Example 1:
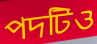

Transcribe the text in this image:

পদটিও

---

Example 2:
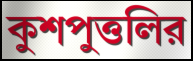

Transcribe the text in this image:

কুশপুত্তলির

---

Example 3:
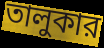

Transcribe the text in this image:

তালুকার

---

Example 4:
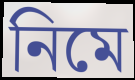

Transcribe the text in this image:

নিমে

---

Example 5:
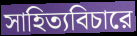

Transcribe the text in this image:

সাহিত্যবিচারে